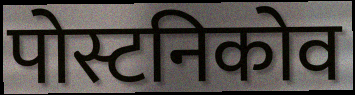
पोस्टनिकोव